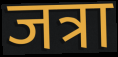
जत्रा